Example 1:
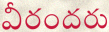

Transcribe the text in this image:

వీరందరు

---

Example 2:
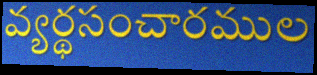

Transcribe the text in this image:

వ్యర్థసంచారముల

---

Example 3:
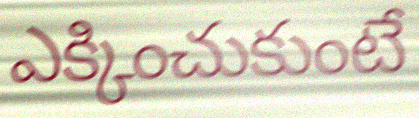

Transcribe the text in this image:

ఎక్కించుకుంటే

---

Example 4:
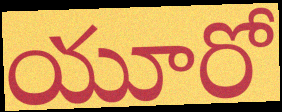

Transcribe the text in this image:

యూరో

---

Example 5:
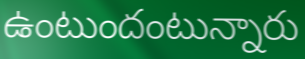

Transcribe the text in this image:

ఉంటుందంటున్నారు